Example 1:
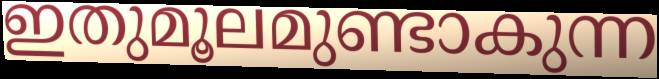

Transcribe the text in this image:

ഇതുമൂലമുണ്ടാകുന്ന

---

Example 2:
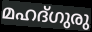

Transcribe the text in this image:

മഹദ്ഗുരു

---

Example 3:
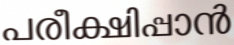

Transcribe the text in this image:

പരീക്ഷിപ്പാൻ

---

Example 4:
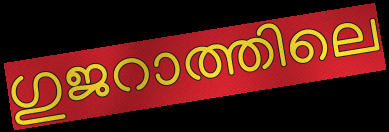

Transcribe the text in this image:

ഗുജറാത്തിലെ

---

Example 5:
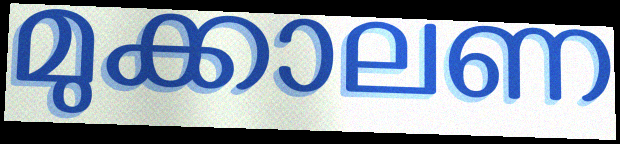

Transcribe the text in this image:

മുക്കാലണ